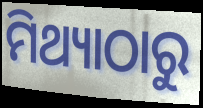
ମିଥ୍ୟାଠାରୁ